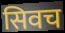
सिवच